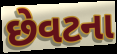
છેવટના